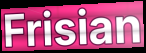
Frisian